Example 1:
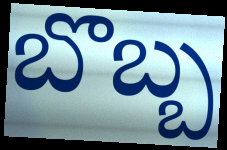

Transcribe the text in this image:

బొబ్బ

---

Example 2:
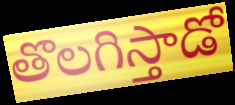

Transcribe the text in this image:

తొలగిస్తాడో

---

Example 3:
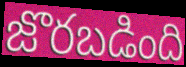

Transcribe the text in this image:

జొరబడింది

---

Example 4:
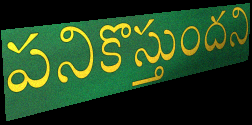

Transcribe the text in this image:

పనికొస్తుందని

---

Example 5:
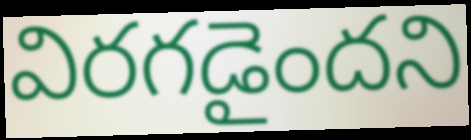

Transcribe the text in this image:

విరగడైందని